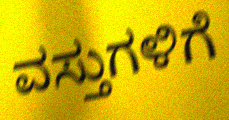
ವಸ್ತುಗಳಿಗೆ